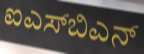
ಐಎಸ್‌ಬಿಎನ್